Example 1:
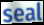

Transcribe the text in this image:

seal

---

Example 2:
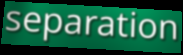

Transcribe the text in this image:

separation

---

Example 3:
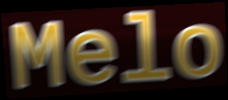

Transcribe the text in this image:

Melo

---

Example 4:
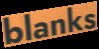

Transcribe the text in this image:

blanks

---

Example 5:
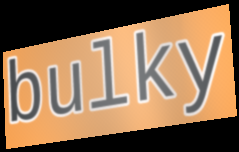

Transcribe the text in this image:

bulky